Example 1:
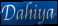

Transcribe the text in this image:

Dahiya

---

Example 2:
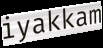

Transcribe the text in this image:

iyakkam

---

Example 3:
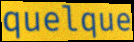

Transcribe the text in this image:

quelque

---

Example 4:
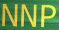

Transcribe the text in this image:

NNP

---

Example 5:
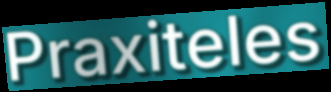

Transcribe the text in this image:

Praxiteles